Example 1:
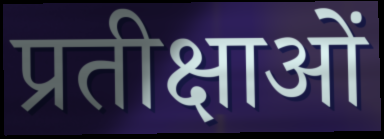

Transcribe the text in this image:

प्रतीक्षाओं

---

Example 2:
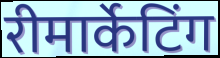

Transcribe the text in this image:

रीमार्केटिंग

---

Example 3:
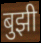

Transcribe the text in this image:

बुझी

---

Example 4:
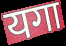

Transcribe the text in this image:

यगा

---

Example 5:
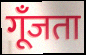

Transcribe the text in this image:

गूँजता